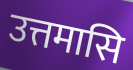
उत्तमासि